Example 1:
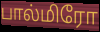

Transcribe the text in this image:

பால்மிரோ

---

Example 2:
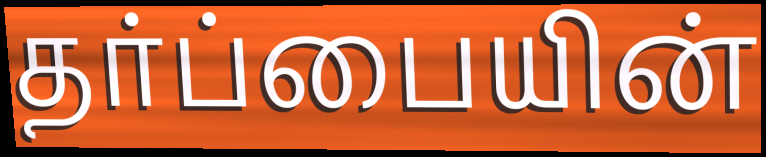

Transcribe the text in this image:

தர்ப்பையின்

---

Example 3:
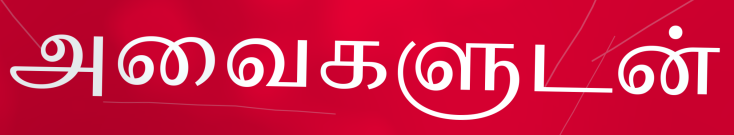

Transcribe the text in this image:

அவைகளுடன்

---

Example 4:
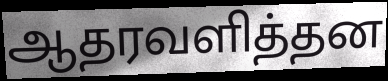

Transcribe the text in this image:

ஆதரவளித்தன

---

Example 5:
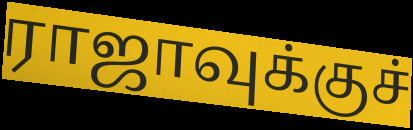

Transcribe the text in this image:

ராஜாவுக்குச்